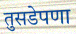
तुसडेपणा